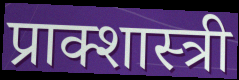
प्राक्शास्त्री